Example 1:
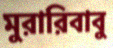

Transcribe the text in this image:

মুরারিবাবু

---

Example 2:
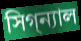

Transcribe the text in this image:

সিগ্‌ন্যাল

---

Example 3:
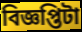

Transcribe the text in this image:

বিজ্ঞপ্তিটা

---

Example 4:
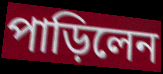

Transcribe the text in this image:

পাড়িলেন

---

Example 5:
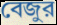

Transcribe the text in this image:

বেজুর